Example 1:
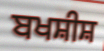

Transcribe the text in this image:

ਬਖਸ਼ੀਸ਼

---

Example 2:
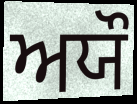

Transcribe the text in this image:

ਅਯੌ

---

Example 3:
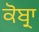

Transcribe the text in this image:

ਕੋਬ੍ਰਾ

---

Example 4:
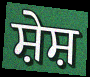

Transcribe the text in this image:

ਸ਼ੇਸ਼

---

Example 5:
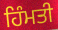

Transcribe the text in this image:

ਹਿੰਮਤੀ